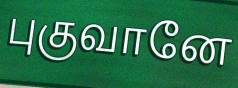
புகுவானே